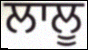
ਲਾਲੂ